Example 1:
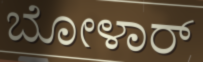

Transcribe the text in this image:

ಬೋಳಾರ್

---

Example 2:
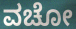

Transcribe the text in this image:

ವಚೋ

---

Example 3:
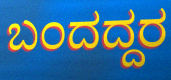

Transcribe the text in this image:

ಬಂದದ್ದರ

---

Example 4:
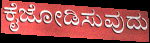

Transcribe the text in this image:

ಕೈಜೋಡಿಸುವುದು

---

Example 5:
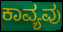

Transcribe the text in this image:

ಕಾವ್ಯವು